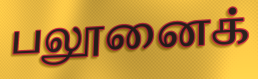
பலூனைக்